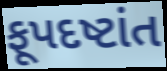
ફૂપદષ્ટાંત